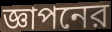
জ্ঞাপনের